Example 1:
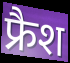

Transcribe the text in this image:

फ्रैश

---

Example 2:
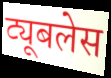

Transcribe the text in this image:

ट्यूबलेस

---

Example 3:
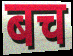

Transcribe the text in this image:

बच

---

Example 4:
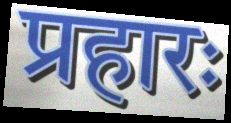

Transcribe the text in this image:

प्रहारः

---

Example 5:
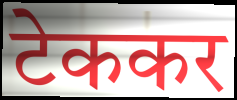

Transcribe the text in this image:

टेककर